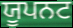
ਯੂਪਨਟ